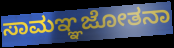
ಸಾಮಞ್ಞಜೋತನಾ